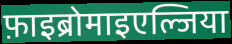
फ़ाइब्रोमाइएल्जिया